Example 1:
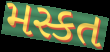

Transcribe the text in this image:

મસ્કત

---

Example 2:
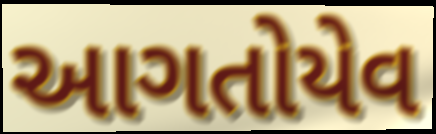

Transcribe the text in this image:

આગતોયેવ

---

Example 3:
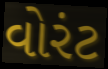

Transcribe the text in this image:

વોરંટ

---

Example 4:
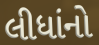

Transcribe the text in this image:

લીધાંનો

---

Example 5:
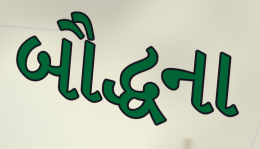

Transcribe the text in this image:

બૌદ્ધના